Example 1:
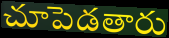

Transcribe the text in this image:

చూపెడతారు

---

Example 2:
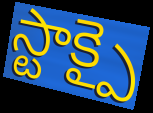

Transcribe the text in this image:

స్టాక్పై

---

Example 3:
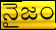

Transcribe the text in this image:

నైజం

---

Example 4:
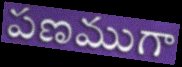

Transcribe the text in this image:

పణముగా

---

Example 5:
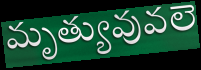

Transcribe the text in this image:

మృత్యువువలె